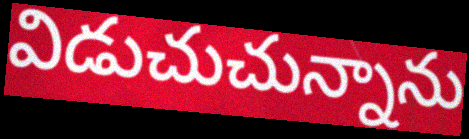
విడుచుచున్నాను